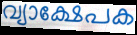
വ്യാക്ഷേപക